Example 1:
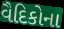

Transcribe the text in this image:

વૈદિકોના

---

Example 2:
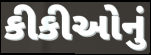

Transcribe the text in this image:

કીકીઓનું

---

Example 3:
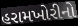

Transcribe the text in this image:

હરામખોરીનો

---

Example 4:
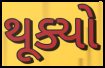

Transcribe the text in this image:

થૂક્યો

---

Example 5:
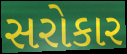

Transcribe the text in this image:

સરોકાર